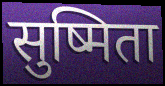
सुष्मिता